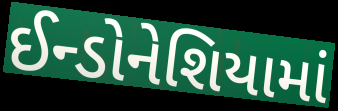
ઈન્ડોનેશિયામાં